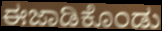
ಈಜಾಡಿಕೊಂಡು